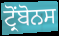
ਟ੍ਰੋਂਬੋਨਸ